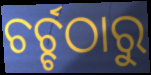
ଚର୍ଚ୍ଚଠାରୁ